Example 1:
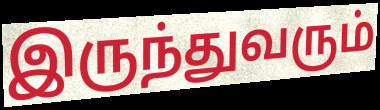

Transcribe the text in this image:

இருந்துவரும்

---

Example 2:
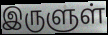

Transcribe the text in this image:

இருளுள்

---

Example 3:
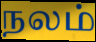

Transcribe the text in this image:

நலம்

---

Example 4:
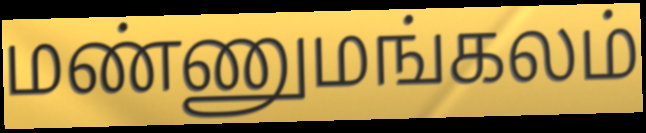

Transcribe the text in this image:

மண்ணுமங்கலம்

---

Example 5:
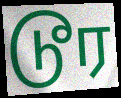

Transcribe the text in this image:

டூர